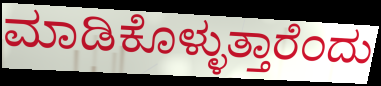
ಮಾಡಿಕೊಳ್ಳುತ್ತಾರೆಂದು